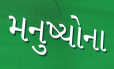
મનુષ્યોના